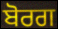
ਬੋਰਗ